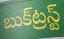
బుక్‌ట్రస్ట్